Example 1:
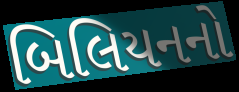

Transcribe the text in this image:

બિલિયનનો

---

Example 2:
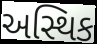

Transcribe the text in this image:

અસ્થિક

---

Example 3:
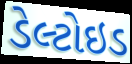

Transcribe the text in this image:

ડેલ્ટોઇડ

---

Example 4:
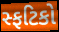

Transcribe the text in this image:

સ્ફટિકો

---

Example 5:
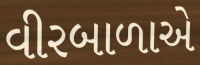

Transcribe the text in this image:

વીરબાળાએ